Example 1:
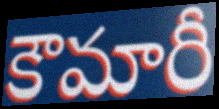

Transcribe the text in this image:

కౌమారీ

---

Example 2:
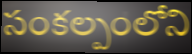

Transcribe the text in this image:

సంకల్పంలోని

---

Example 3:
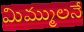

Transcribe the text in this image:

మిమ్ములనే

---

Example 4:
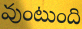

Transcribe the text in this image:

వుంటుంది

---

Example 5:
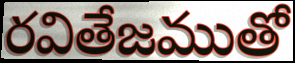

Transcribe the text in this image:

రవితేజముతో